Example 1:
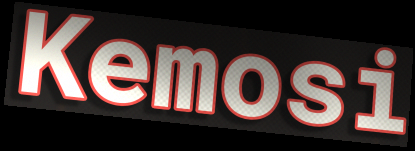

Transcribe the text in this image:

Kemosi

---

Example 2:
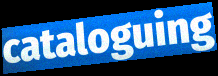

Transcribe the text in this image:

cataloguing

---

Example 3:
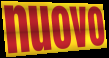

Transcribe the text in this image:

nuovo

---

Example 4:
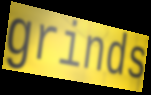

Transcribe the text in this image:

grinds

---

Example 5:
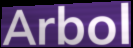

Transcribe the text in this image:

Arbol